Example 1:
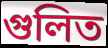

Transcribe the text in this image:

গুলিত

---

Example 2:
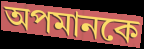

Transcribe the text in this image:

অপমানকে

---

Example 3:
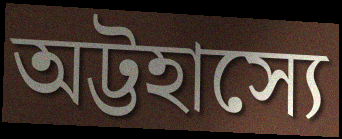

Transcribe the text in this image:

অট্টহাস্যে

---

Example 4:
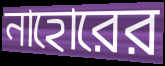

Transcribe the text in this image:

নাহোরের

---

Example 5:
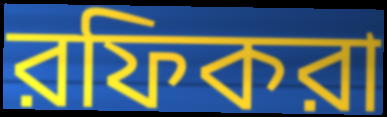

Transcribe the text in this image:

রফিকরা